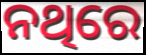
ନଥିରେ